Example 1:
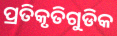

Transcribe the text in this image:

ପ୍ରତିକୃତିଗୁଡିକ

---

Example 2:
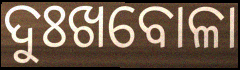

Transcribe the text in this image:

ଦୁଃଖବୋଳା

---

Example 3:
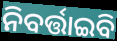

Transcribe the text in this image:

ନିବର୍ତ୍ତାଇବି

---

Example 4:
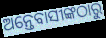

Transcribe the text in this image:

ଅନ୍ତେବାସୀଙ୍କଠାରୁ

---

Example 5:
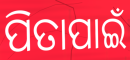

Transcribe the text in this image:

ପିତାପାଇଁ